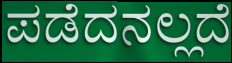
ಪಡೆದನಲ್ಲದೆ